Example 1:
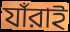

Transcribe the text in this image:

যাঁরাই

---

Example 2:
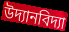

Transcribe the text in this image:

উদ্যানবিদ্যা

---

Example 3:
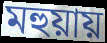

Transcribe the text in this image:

মহুয়ায়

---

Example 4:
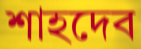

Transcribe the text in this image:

শাহদেব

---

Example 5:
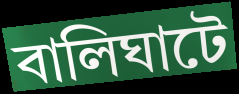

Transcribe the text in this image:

বালিঘাটে